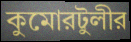
কুমোরটুলীর